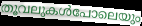
തൂവലുകൾപോലെയും